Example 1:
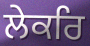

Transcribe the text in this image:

ਲੇਕਰਿ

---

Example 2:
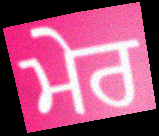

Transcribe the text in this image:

ਮੇਰ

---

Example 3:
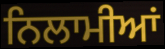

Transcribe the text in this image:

ਨਿਲਾਮੀਆਂ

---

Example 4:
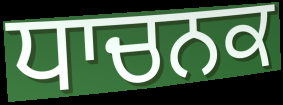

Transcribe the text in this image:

ਧਾਚਨਕ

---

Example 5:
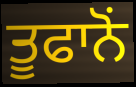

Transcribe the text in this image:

ਤੂਫਾਨੋਂ